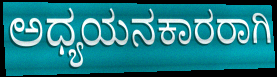
ಅಧ್ಯಯನಕಾರರಾಗಿ